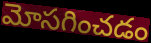
మోసగించడం